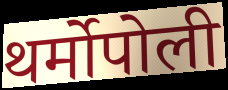
थर्मोपोली